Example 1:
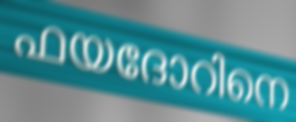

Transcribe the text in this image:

ഫയദോറിനെ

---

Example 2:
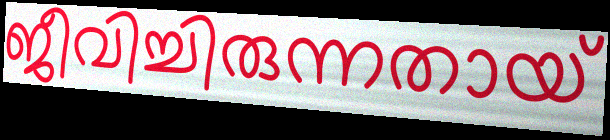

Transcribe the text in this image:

ജീവിച്ചിരുന്നതായ്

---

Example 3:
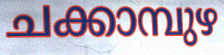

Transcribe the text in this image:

ചക്കാമ്പുഴ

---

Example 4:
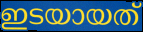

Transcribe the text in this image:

ഇടയായത്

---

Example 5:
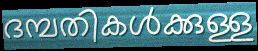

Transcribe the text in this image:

ദമ്പതികൾക്കുള്ള